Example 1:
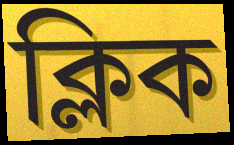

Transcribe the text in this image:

ক্লিক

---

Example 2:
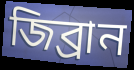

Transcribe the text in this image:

জিব্রান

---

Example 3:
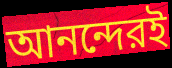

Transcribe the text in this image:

আনন্দেরই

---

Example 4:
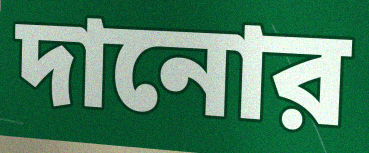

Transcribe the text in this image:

দানোর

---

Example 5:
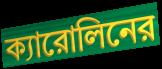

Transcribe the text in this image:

ক্যারোলিনের